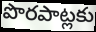
పొరపాట్లకు